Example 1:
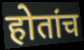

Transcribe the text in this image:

होतांच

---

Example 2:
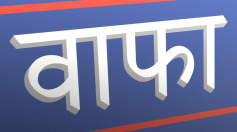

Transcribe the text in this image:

वाफा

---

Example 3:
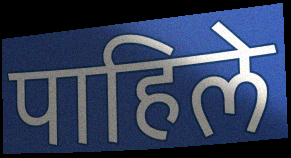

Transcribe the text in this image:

पाहिले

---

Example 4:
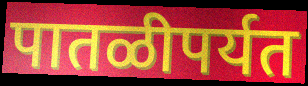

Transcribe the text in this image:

पातळीपर्यत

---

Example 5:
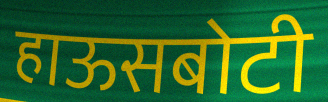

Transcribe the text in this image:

हाऊसबोटी